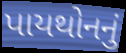
પાયથોનનું